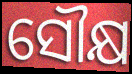
ସୌକ୍ଷ